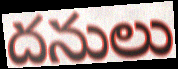
దనులు